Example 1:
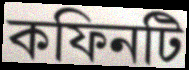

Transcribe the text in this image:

কফিনটি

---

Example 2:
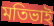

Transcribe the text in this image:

মতিভাই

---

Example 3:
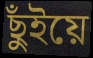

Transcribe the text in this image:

ছুঁইয়ে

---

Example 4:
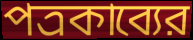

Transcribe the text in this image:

পত্রকাব্যের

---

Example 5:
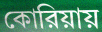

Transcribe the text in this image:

কোরিয়ায়